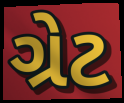
ગ્રેટ